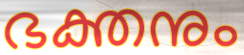
ഭക്തനും